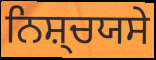
ਨਿਸ਼੍ਚਯਸੇ